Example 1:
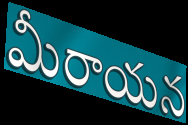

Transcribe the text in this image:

మీరాయన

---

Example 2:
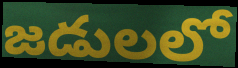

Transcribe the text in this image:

జడులలో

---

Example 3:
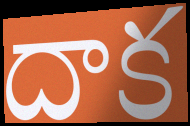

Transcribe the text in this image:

దాక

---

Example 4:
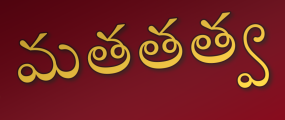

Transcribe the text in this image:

మతతత్వ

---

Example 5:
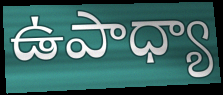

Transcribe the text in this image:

ఉపాధ్యా